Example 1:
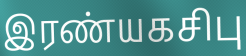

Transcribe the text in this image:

இரண்யகசிபு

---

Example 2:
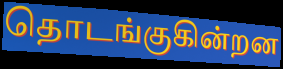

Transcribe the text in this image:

தொடங்குகின்றன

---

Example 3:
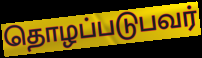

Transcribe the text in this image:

தொழப்படுபவர்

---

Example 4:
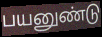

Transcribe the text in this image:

பயனுண்டு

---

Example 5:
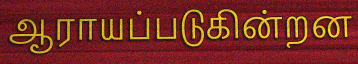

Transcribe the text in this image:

ஆராயப்படுகின்றன